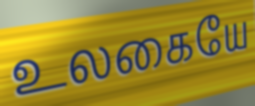
உலகையே